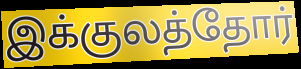
இக்குலத்தோர்